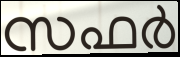
സഫർ